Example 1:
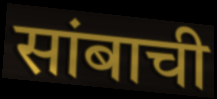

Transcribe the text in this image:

सांबाची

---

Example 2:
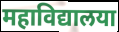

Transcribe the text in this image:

महाविद्यालया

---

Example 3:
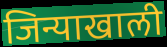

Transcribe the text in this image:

जिन्याखाली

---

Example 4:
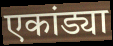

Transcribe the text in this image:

एकांड्या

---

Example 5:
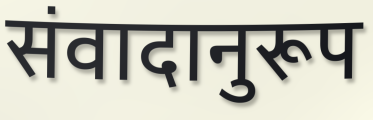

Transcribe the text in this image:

संवादानुरूप